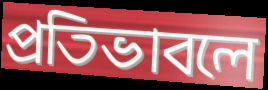
প্রতিভাবলে